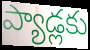
ప్యాడ్లకు